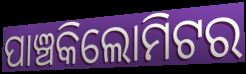
ପାଞ୍ଚକିଲୋମିଟର